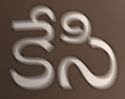
కేసి